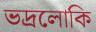
ভদ্রলোকি